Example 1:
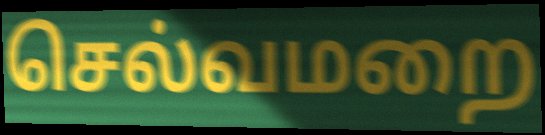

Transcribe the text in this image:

செல்வமறை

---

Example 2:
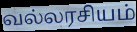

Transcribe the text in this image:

வல்லரசியம்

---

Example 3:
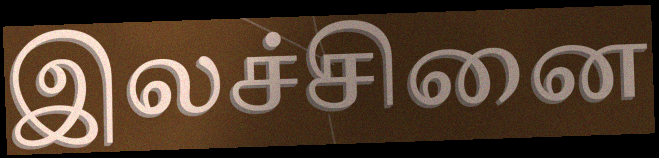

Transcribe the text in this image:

இலச்சினை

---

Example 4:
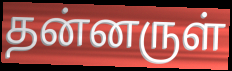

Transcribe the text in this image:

தன்னருள்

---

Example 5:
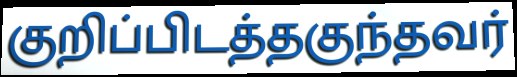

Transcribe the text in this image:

குறிப்பிடத்தகுந்தவர்